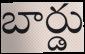
బార్డు